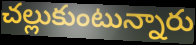
చల్లుకుంటున్నారు